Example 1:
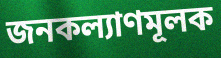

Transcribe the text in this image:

জনকল্যাণমূলক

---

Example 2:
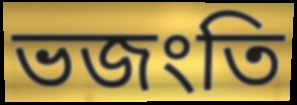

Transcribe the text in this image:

ভজংতি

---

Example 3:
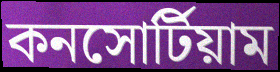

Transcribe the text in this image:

কনসোর্টিয়াম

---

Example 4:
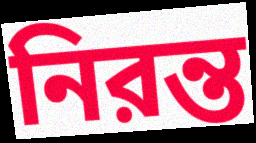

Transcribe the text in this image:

নিরন্ত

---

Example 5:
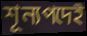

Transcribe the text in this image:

শূন্যপদেই